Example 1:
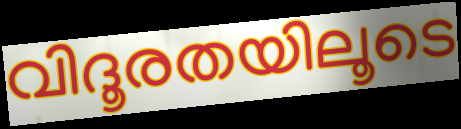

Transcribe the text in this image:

വിദൂരതയിലൂടെ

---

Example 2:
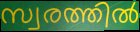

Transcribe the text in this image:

സ്വരത്തിൽ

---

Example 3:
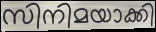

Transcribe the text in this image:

സിനിമയാക്കി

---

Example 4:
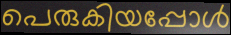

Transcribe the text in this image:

പെരുകിയപ്പോൾ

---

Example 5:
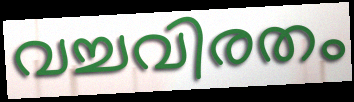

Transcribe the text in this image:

വച്ചവിരതം